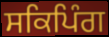
ਸਕਿਪਿੰਗ